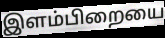
இளம்பிறையை